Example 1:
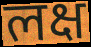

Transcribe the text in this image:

लक्ष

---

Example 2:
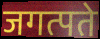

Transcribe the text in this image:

जगत्पते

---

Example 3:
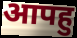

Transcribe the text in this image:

आपहु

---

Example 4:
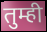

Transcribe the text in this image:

तुम्ही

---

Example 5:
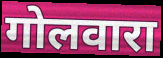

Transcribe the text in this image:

गोलवारा